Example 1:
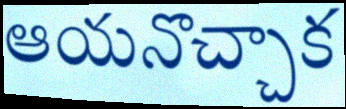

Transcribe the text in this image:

ఆయనొచ్చాక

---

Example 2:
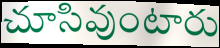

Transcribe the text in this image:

చూసివుంటారు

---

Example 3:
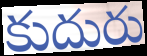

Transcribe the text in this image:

కుదురు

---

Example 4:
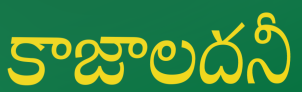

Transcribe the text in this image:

కాజాలదనీ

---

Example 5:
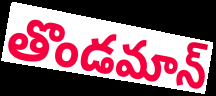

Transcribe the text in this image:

తొండమాన్